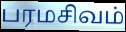
பரமசிவம்